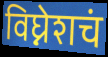
विघ्नेशचं